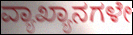
ವ್ಯಾಖ್ಯಾನಗಳೇ